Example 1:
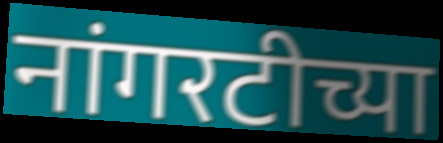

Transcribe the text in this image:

नांगरटीच्या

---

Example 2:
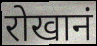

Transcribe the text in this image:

रोखानं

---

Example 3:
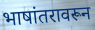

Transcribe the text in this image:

भाषांतरावरून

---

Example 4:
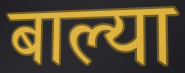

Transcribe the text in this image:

बाल्या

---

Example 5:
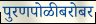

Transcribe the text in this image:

पुरणपोळीबरोबर